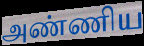
அண்ணிய